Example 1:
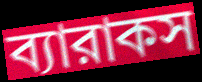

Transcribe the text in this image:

ব্যারাকস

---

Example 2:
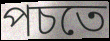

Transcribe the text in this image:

পচতে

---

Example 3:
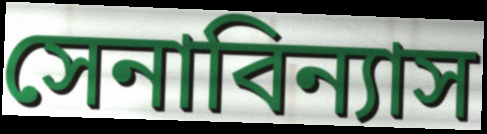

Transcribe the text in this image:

সেনাবিন্যাস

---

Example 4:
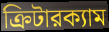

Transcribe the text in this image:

ক্রিটারক্যাম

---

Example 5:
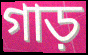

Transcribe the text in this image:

গাড়